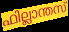
ഫില്ലാന്തസ്